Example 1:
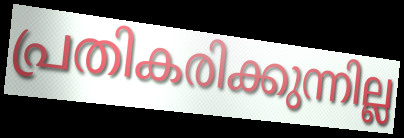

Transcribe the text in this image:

പ്രതികരിക്കുന്നില്ല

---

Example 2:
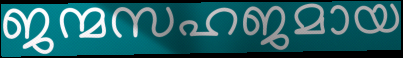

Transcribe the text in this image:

ജന്മസഹജമായ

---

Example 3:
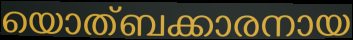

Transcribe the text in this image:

യൊത്ബക്കാരനായ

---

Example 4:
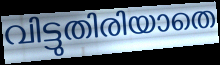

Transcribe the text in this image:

വിട്ടുതിരിയാതെ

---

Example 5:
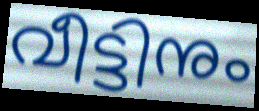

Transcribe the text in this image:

വീട്ടിനും